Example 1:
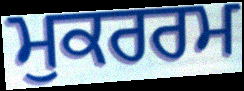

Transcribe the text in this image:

ਮੁਕਰਰਮ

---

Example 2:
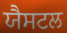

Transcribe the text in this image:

ਯੈਸਟਲ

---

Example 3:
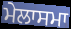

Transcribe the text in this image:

ਮੇਲਾਸਮਾ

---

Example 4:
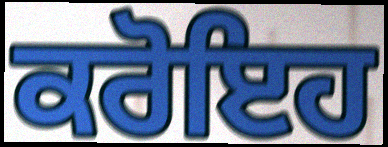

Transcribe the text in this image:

ਕਰੋਇਹ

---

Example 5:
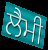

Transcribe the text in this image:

ਲੈਮੀ